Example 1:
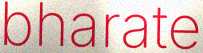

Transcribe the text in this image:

bharate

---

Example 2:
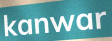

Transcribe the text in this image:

kanwar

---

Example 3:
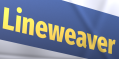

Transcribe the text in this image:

Lineweaver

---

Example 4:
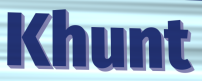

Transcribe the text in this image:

Khunt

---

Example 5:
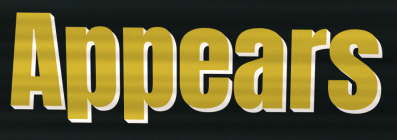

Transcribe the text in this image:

Appears